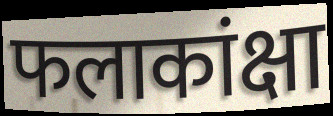
फलाकांक्षा